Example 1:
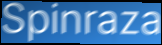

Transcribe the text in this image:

Spinraza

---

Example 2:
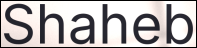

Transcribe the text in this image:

Shaheb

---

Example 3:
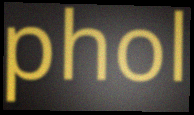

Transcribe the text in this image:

phol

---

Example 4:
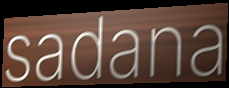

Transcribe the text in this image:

sadana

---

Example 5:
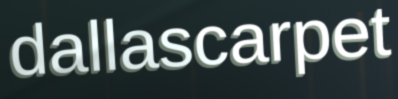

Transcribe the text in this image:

dallascarpet